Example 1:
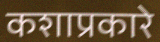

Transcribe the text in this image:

कशाप्रकारे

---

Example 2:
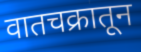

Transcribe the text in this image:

वातचक्रातून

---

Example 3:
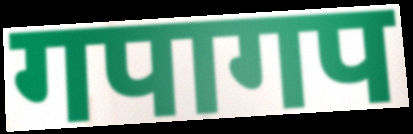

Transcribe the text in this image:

गपागप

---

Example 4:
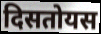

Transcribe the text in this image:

दिसतोयस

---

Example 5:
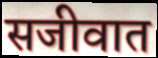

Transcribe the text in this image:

सजीवात